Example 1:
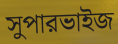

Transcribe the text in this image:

সুপারভাইজ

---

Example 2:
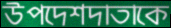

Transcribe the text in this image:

উপদেশদাতাকে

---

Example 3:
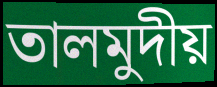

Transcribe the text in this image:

তালমুদীয়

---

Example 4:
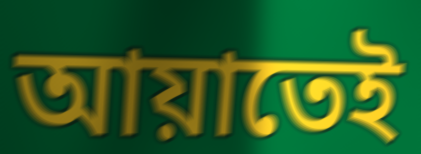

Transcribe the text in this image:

আয়াতেই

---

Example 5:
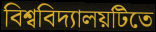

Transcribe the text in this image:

বিশ্ববিদ্যালয়টিতে